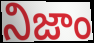
నిజాం